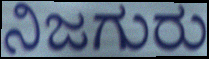
ನಿಜಗುರು